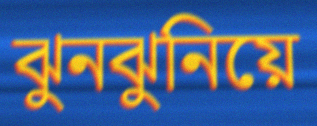
ঝুনঝুনিয়ে